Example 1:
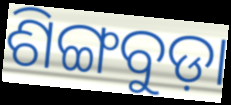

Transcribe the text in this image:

ଶିଙ୍ଗବୁଡ଼ା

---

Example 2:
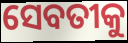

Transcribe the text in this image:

ସେବତୀକୁ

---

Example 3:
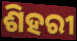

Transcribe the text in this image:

ଶିହରୀ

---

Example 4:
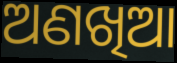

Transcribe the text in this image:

ଅଣଖିଆ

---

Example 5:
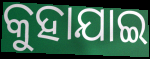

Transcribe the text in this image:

କୁହାଯାଇ